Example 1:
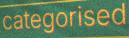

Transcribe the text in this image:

categorised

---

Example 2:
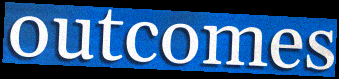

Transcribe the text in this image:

outcomes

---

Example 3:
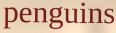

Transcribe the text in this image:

penguins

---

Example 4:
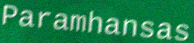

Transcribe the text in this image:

Paramhansas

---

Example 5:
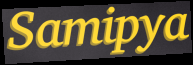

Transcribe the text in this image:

Samipya